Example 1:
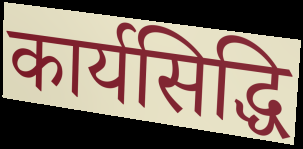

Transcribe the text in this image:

कार्यसिद्धि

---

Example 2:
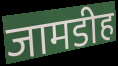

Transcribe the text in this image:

जामडीह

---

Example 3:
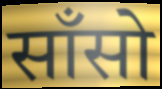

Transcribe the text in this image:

साँसो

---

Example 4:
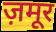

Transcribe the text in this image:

ज़मूर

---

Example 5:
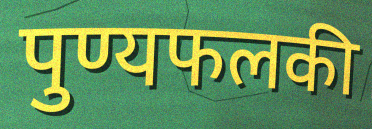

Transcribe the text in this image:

पुण्यफलकी